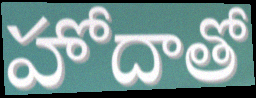
హోదాతో